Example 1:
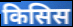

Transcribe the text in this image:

किसिस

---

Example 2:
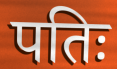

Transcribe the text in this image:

पतिः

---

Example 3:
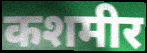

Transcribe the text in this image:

कशमीर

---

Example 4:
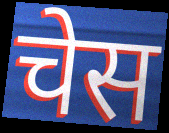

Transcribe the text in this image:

चेस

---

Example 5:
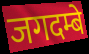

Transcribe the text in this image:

जगदम्बे